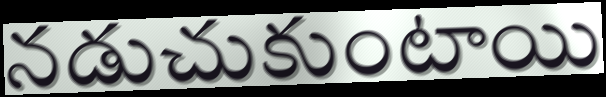
నడుచుకుంటాయి